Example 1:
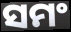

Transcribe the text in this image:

ସମଂ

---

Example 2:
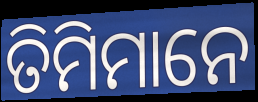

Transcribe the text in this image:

ତିମିମାନେ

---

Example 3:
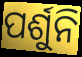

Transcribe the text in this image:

ପର୍ଶୁନି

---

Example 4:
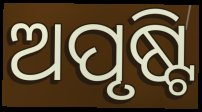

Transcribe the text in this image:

ଅପୃଷ୍ଟି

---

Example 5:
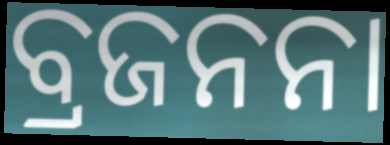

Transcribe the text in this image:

ବ୍ରଜନନା